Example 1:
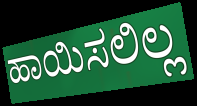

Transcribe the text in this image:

ಹಾಯಿಸಲಿಲ್ಲ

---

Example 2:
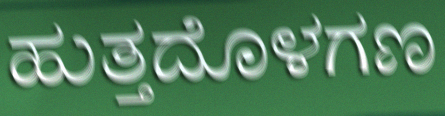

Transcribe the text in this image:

ಹುತ್ತದೊಳಗಣ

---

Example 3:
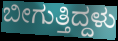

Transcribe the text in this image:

ಬೀಗುತ್ತಿದ್ದಳು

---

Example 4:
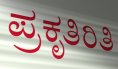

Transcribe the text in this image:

ಪ್ರಕೃತಿರಿತಿ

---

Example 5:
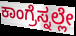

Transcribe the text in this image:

ಕಾಂಗ್ರೆಸ್ನಲ್ಲೇ